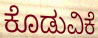
ಕೊಡುವಿಕೆ